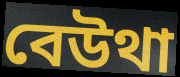
বেউথা